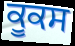
ਕੂਕਸ